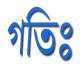
গতিঃ